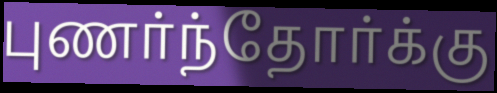
புணர்ந்தோர்க்கு